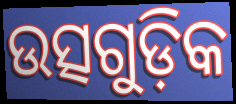
ଉତ୍ସଗୁଡ଼ିକ